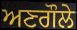
ਅਣਗੌਲੇ